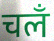
चलँ